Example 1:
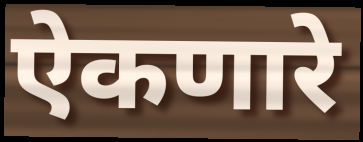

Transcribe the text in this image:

ऐकणारे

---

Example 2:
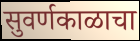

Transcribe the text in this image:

सुवर्णकाळाचा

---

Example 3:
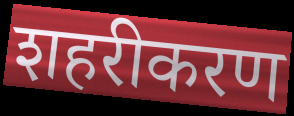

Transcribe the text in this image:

शहरीकरण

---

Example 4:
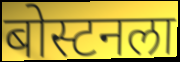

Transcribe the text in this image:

बोस्टनला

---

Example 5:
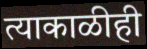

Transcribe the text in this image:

त्याकाळीही